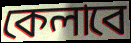
কেলাবে